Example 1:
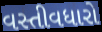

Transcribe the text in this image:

વસ્તીવધારો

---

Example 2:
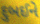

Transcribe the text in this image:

દુબઈને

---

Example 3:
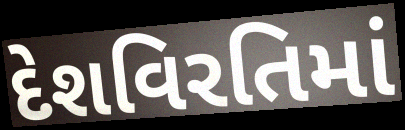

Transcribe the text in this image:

દેશવિરતિમાં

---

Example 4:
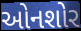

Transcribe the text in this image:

ઓનશોર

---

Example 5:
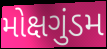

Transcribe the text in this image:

મોક્ષગુંડમ